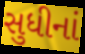
સુધીનાં